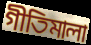
গীতিমালা